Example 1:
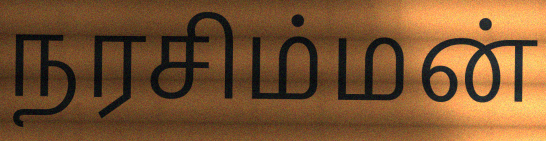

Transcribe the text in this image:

நரசிம்மன்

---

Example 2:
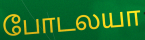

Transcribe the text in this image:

போடலயா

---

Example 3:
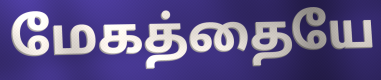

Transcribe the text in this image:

மேகத்தையே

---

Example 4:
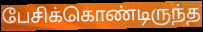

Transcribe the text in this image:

பேசிக்கொண்டிருந்த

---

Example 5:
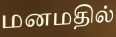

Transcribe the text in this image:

மனமதில்